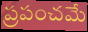
ప్రపంచమే